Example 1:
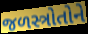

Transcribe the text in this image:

જળસ્ત્રોતોને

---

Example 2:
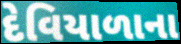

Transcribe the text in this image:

દેવિયાળાના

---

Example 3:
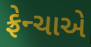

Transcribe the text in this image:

ફ્રેન્ચાએ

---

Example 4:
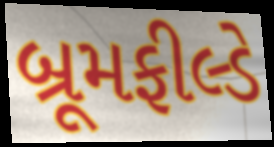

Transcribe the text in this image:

બ્રૂમફીલ્ડે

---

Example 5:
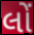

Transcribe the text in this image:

લોં